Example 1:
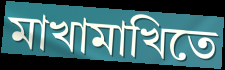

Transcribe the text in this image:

মাখামাখিতে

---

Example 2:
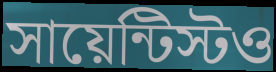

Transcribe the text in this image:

সায়েন্টিস্টও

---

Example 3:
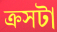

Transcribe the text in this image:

ক্রসটা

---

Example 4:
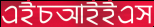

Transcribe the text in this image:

এইচআইইএস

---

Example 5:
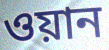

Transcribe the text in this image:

ওয়ান